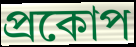
প্রকোপ